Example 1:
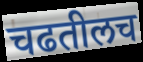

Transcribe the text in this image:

चढतीलच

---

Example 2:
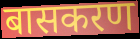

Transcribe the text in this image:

बासकरण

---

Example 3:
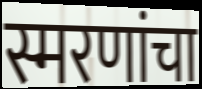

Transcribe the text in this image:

स्मरणांचा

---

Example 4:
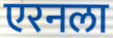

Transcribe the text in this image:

एरनला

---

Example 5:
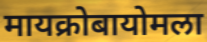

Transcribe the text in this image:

मायक्रोबायोमला